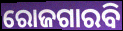
ରୋଜଗାରବି